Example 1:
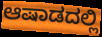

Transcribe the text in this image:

ಆಷಾಡದಲ್ಲಿ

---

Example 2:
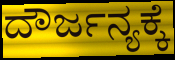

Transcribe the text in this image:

ದೌರ್ಜನ್ಯಕ್ಕೆ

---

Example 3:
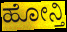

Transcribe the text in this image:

ಹೋನ್ತಿ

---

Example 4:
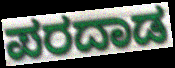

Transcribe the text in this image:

ಪರದಾಡ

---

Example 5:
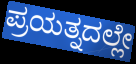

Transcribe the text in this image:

ಪ್ರಯತ್ನದಲ್ಲೇ